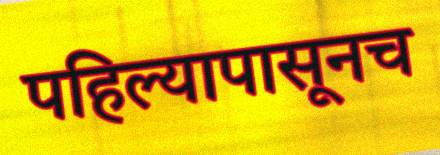
पहिल्यापासूनच